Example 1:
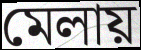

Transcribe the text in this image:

মেলায়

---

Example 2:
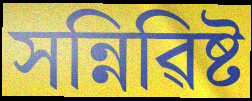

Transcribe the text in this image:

সন্নিৱিষ্ট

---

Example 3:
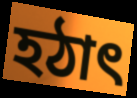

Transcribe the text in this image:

হঠাৎ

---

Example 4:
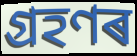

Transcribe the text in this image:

গ্ৰহণৰ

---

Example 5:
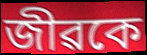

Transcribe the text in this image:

জীৱকে